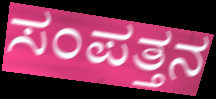
ಸಂಪತ್ತನ